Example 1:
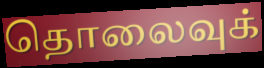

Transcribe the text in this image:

தொலைவுக்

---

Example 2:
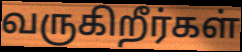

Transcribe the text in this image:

வருகிறீர்கள்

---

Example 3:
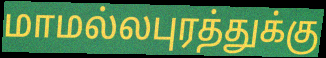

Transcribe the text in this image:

மாமல்லபுரத்துக்கு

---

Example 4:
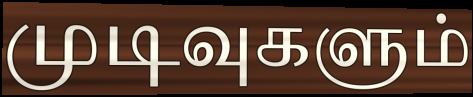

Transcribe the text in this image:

முடிவுகளும்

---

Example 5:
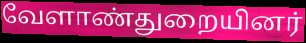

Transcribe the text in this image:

வேளாண்துறையினர்